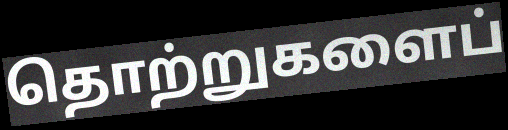
தொற்றுகளைப்